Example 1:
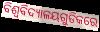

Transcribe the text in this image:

ବିଶ୍ୱବିଦ୍ୟାଳୟଗୁଡିକରେ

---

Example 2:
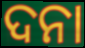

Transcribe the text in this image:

ଦନା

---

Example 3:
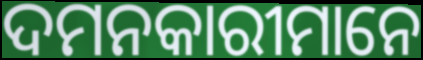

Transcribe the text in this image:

ଦମନକାରୀମାନେ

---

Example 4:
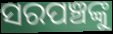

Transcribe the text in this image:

ସରପଞ୍ଚଙ୍କୁ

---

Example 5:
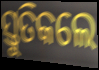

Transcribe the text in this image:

ସ୍ତୁତିକଲେ